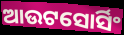
ଆଉଟସୋର୍ସିଂ